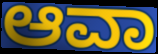
ಆವಾ